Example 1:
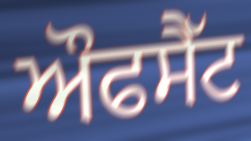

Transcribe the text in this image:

ਔਫਸੈੱਟ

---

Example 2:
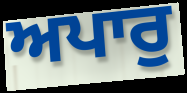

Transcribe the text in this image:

ਅਪਾਰੁ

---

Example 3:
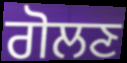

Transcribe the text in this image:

ਗੋਲਣ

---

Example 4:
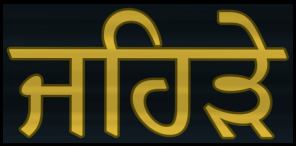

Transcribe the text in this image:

ਜਹਿੜੇ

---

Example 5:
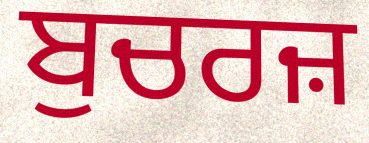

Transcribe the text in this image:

ਬੁਚਰਜ਼